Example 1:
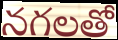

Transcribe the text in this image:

నగలతో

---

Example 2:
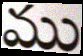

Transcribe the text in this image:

ము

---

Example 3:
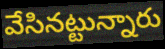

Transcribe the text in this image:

వేసినట్టున్నారు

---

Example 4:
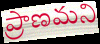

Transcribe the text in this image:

ప్రాణమని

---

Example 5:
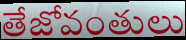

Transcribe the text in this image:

తేజోవంతులు